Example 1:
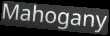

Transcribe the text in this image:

Mahogany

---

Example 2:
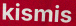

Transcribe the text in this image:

kismis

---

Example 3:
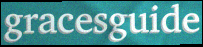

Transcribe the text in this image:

gracesguide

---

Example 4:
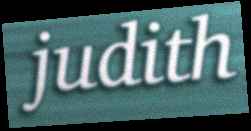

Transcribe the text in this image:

judith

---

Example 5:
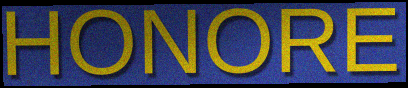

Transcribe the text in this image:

HONORE